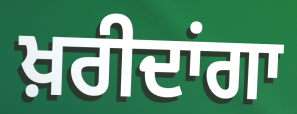
ਖ਼ਰੀਦਾਂਗਾ